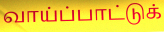
வாய்ப்பாட்டுக்